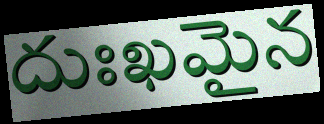
దుఃఖమైన